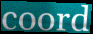
coord